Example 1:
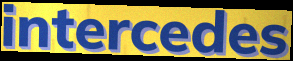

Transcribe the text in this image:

intercedes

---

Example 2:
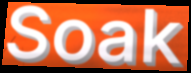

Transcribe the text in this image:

Soak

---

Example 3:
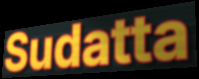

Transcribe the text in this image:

Sudatta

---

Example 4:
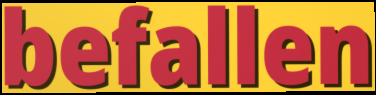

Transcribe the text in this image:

befallen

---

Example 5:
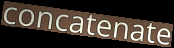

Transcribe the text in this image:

concatenate